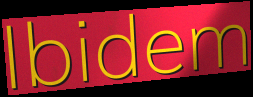
Ibidem